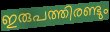
ഇരുപത്തിരണ്ടും